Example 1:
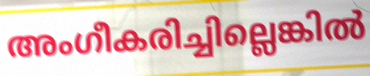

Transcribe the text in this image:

അംഗീകരിച്ചില്ലെങ്കിൽ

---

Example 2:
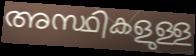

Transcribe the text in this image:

അസ്ഥികളുള്ള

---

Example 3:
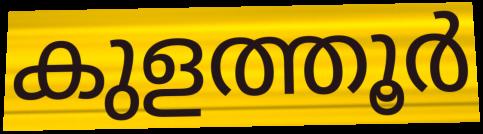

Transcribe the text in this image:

കുളത്തൂർ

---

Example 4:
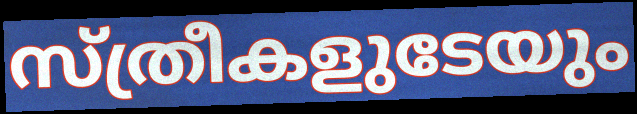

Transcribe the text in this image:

സ്ത്രീകളുടേയും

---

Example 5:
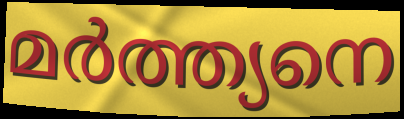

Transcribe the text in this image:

മർത്ത്യനെ